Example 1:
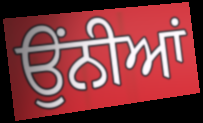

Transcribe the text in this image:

ਉੰਨੀਆਂ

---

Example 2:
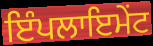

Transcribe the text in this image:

ਇੰਪਲਾਇਮੇਂਟ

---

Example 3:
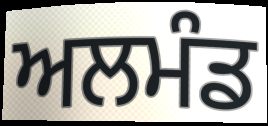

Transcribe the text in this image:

ਅਲਮੰਡ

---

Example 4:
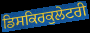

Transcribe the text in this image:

ਡਿਸਕਿਰਕੁਲੇਟਰੀ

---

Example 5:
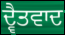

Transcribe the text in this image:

ਦ੍ਵੈਤਵਾਦ